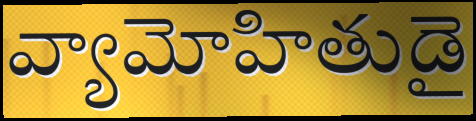
వ్యామోహితుడై